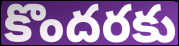
కొందరకు